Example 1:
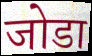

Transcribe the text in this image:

जोडा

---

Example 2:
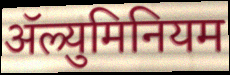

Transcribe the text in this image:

ॲल्युमिनियम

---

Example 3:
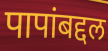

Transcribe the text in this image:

पापांबद्दल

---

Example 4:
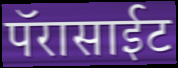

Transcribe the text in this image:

पॅरासाईट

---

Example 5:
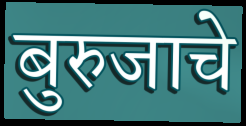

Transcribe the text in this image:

बुरुजाचे